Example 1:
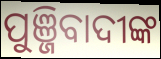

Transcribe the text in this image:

ପୁଞ୍ଜିବାଦୀଙ୍କ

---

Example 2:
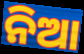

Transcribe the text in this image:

ନିଆ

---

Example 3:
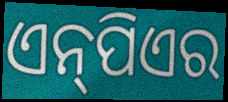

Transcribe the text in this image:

ଏନ୍‌ପିଏର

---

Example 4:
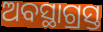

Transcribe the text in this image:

ଅବସ୍ଥାଗ୍ରସ୍ତ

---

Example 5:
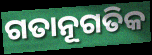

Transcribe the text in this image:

ଗତାନୂଗତିକ